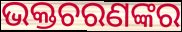
ଭକ୍ତଚରଣଙ୍କର